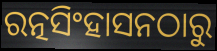
ରତ୍ନସିଂହାସନଠାରୁ